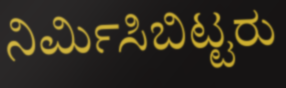
ನಿರ್ಮಿಸಿಬಿಟ್ಟರು